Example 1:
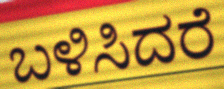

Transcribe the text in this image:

ಬಳಿಸಿದರೆ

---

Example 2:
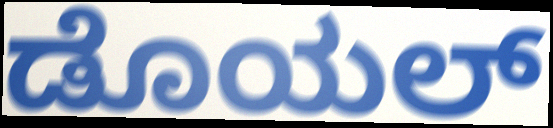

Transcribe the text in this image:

ಡೊಯಲ್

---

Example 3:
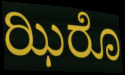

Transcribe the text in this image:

ಝಿರೊ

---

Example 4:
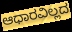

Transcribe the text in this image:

ಆಧಾರವಿಲ್ಲದ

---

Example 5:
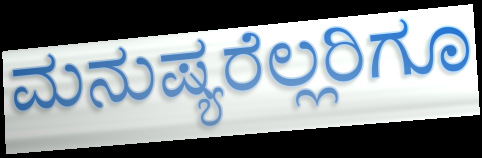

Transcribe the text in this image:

ಮನುಷ್ಯರೆಲ್ಲರಿಗೂ